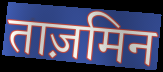
ताज़मिन